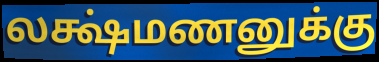
லக்ஷ்மணனுக்கு